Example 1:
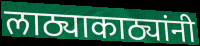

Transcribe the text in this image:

लाठ्याकाठ्यांनी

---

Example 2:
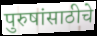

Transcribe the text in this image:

पुरुषांसाठीचे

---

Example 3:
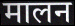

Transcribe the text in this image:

मालन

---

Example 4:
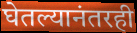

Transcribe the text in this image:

घेतल्यानंतरही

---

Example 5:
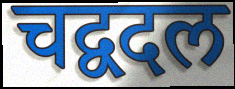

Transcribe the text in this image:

चद्वदल